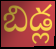
బిడ్ల